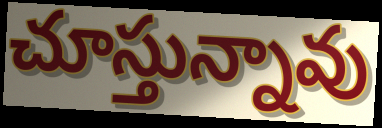
చూస్తున్నావు